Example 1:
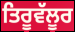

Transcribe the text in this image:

ਤਿਰੂਵੱਲੂਰ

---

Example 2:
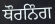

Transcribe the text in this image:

ਥੌਰਨਿੰਗ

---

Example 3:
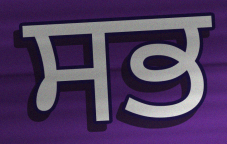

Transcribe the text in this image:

ਸਭ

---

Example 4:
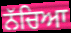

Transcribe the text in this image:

ਨੱਚਿਆ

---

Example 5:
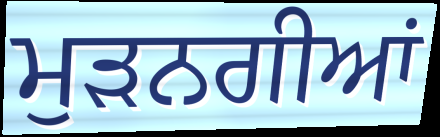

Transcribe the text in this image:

ਮੁੜਨਗੀਆਂ